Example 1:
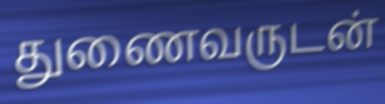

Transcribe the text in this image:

துணைவருடன்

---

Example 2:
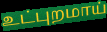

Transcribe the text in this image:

உட்புறமாய்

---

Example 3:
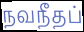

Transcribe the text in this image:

நவநீதப்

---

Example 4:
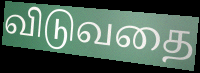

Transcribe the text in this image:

விடுவதை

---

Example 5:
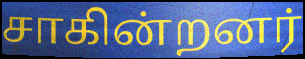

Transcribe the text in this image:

சாகின்றனர்